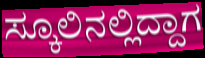
ಸ್ಕೂಲಿನಲ್ಲಿದ್ದಾಗ